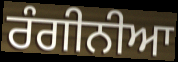
ਰੰਗੀਨੀਆ